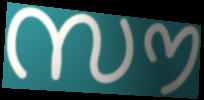
സൗ